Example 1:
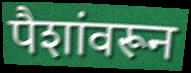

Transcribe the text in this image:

पैशांवरून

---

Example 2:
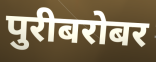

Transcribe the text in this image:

पुरीबरोबर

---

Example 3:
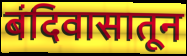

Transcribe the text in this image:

बंदिवासातून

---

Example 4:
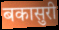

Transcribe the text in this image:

बकासुरी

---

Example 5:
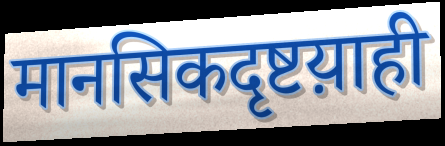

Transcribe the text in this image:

मानसिकदृष्टय़ाही